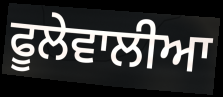
ਫੂਲੇਵਾਲੀਆ